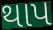
થાપ